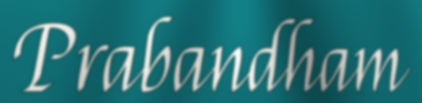
Prabandham